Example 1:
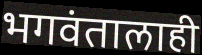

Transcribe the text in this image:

भगवंतालाही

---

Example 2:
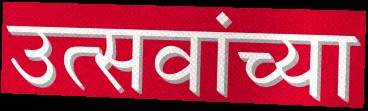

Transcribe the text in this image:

उत्सवांच्या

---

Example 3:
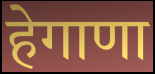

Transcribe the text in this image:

हेगाणा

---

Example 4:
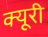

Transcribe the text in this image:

क्यूरी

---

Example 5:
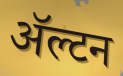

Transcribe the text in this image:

ॲल्टन